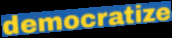
democratize